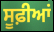
ਸੂਫ਼ੀਆਂ